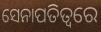
ସେନାପତିତ୍ୱରେ